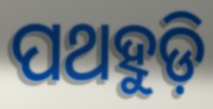
ପଥହୁଡ଼ି